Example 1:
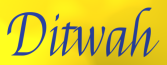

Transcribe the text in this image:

Ditwah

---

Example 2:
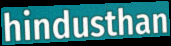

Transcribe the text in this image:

hindusthan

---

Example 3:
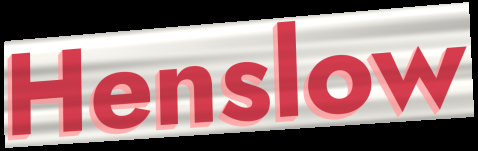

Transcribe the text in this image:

Henslow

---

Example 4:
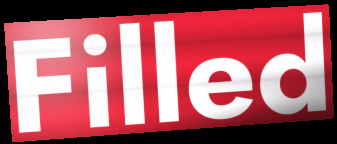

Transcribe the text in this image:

Filled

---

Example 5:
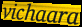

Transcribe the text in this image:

vichaara